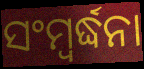
ସଂମ୍ବର୍ଦ୍ଧନା